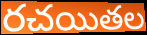
రచయితల